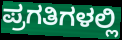
ಪ್ರಗತಿಗಳಲ್ಲಿ